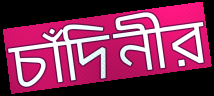
চাঁদিনীর